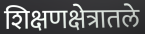
शिक्षणक्षेत्रातले